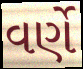
વર્ણે